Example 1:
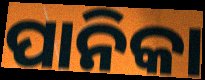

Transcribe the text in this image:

ପାନିକା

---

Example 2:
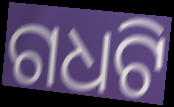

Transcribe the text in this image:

ଗଧଟି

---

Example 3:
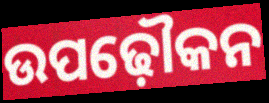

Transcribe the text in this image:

ଉପଢ଼ୌକନ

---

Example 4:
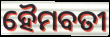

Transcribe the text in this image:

ହୈମବତୀ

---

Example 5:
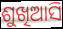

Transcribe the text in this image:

ଶୁଖିଆସି